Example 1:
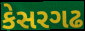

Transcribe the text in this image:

કેસરગઢ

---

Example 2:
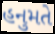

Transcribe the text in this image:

હનુમતે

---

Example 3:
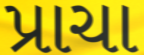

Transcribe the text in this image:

પ્રાચા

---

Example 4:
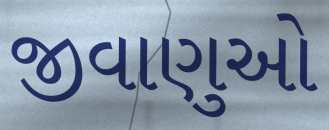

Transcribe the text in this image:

જીવાણુઓ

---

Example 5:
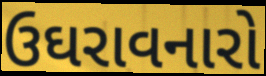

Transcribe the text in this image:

ઉઘરાવનારો